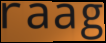
raag